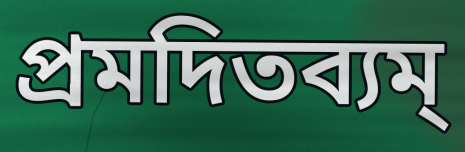
প্রমদিতব্যম্